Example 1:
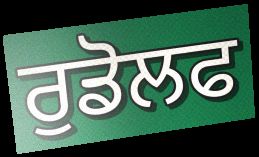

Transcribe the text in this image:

ਰੁਡੋਲਫ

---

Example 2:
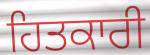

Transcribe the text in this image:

ਹਿਤਕਾਰੀ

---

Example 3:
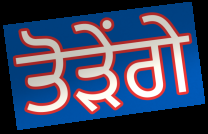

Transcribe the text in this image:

ਤੋੜੇਂਗੇ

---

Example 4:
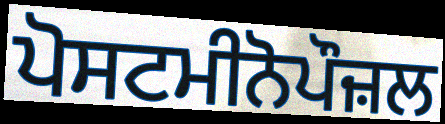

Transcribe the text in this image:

ਪੋਸਟਮੀਨੋਪੌਜ਼ਲ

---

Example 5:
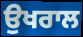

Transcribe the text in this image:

ਉਖਰਾਲ